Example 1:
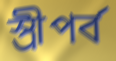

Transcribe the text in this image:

স্ত্রীপর্ব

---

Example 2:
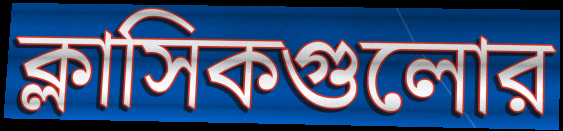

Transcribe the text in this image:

ক্লাসিকগুলোর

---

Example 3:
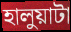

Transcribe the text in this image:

হালুয়াটা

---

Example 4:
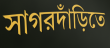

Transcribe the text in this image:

সাগরদাঁড়িতে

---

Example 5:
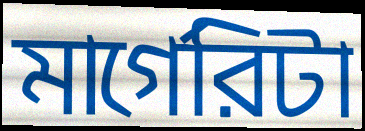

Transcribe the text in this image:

মার্গেরিটা